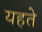
यहते